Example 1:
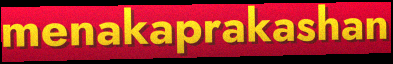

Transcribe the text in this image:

menakaprakashan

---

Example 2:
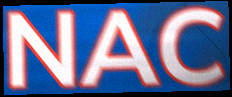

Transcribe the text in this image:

NAC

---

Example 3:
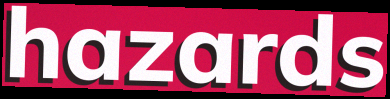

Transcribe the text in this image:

hazards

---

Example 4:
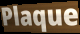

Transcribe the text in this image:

Plaque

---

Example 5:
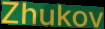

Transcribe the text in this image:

Zhukov